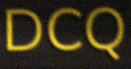
DCQ